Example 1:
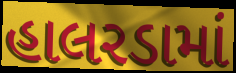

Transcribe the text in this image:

હાલરડામાં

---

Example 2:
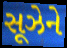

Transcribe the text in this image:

સૂઝેને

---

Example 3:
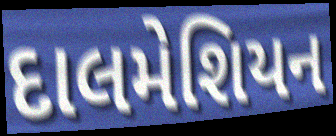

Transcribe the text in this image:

દાલમેશિયન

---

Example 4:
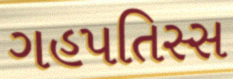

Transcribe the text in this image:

ગહપતિસ્સ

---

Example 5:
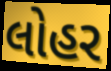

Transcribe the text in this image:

લોહર